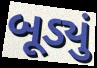
બૂડ્યું